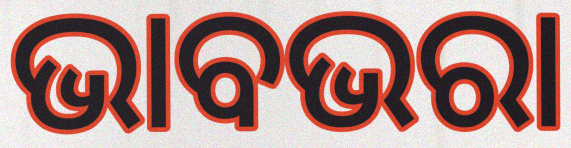
ଭାବଭରା